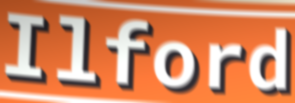
Ilford